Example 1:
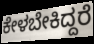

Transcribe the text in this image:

ಕೇಳಬೇಕಿದ್ದರೆ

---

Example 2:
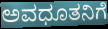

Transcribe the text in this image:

ಅವಧೂತನಿಗೆ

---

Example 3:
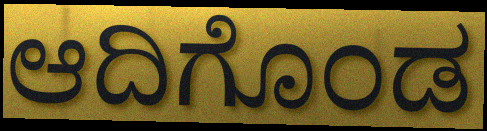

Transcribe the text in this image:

ಆದಿಗೊಂಡ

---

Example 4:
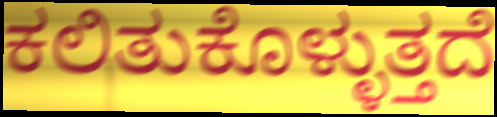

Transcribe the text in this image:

ಕಲಿತುಕೊಳ್ಳುತ್ತದೆ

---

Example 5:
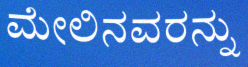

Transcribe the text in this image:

ಮೇಲಿನವರನ್ನು